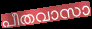
പീതവാസാ